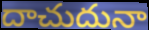
దాచుదునా